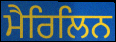
ਮੈਰਿਲਿਨ